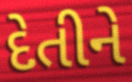
દેતીને